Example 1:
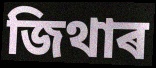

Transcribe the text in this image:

জিথাৰ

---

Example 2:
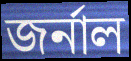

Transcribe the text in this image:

জৰ্নাল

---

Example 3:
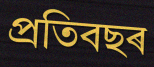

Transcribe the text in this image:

প্ৰতিবছৰ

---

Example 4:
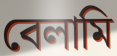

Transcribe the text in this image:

বেলামি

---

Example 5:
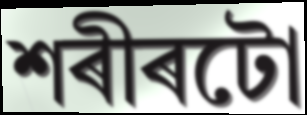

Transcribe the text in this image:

শৰীৰটো